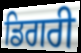
ਡਿਗਰੀ